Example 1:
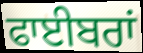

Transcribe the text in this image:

ਫਾਈਬਰਾਂ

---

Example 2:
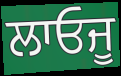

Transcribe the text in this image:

ਲਾਓਜੂ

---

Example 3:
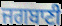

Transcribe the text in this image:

ਜਗਬਾਣੀ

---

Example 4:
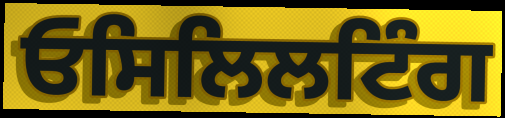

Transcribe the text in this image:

ਓਸਿਲਿਲਟਿੰਗ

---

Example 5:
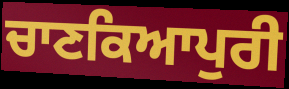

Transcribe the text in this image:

ਚਾਣਕਿਆਪੁਰੀ